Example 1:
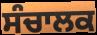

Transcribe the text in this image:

ਸੰਚਾਲਕ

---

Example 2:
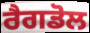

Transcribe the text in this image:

ਰੈਗਡੋਲ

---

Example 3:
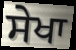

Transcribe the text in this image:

ਸੇਖਾ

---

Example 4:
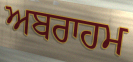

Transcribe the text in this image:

ਅਬਰਾਹਮ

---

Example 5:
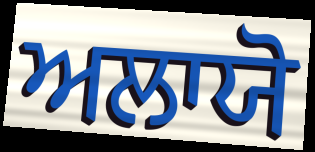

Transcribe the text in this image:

ਅਲਾਯੋ